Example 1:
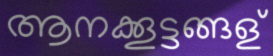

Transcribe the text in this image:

ആനക്കൂട്ടങ്ങള്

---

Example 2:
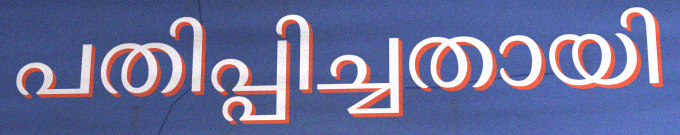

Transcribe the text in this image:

പതിപ്പിച്ചതായി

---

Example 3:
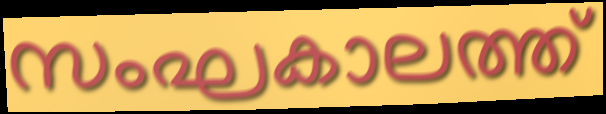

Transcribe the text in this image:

സംഘകാലത്ത്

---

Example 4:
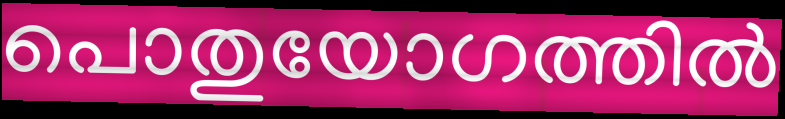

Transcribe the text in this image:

പൊതുയോഗത്തിൽ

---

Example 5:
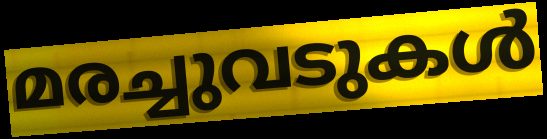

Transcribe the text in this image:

മരച്ചുവടുകൾ